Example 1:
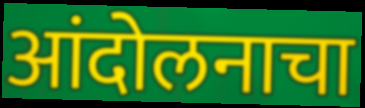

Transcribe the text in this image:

आंदोलनाचा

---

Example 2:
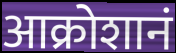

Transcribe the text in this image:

आक्रोशानं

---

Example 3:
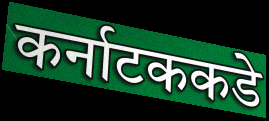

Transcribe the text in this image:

कर्नाटककडे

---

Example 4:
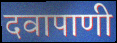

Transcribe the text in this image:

दवापाणी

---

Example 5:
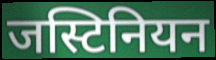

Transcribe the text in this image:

जस्टिनियन